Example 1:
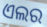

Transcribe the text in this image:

ଏଲର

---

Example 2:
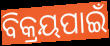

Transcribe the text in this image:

ବିକ୍ରୟପାଇଁ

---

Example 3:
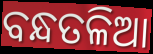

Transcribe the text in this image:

ବନ୍ଧତଳିଆ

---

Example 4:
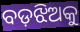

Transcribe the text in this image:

ବଡ଼ଝିଅକୁ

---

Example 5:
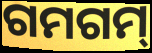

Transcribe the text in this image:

ଗମଗମ୍